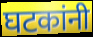
घटकांनी